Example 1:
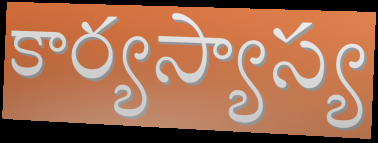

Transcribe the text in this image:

కార్యస్యాస్య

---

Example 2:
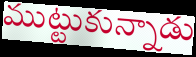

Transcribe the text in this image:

ముట్టుకున్నాడు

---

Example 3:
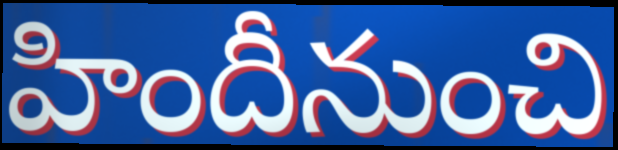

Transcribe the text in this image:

హిందీనుంచి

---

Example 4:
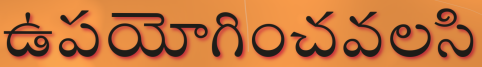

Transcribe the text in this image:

ఉపయోగించవలసి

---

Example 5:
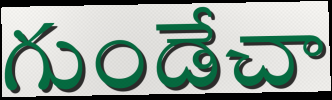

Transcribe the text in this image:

గుండేచా